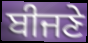
ਬੀਜਣੇ